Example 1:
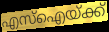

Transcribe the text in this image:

എസ്ഐയ്ക്ക്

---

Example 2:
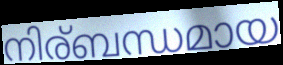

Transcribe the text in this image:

നിര്ബന്ധമായ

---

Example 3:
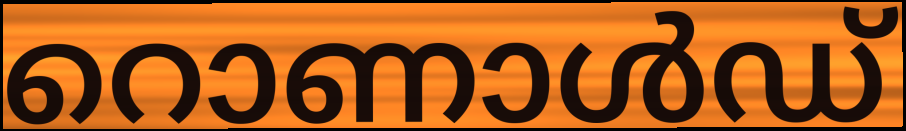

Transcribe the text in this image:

റൊണാൾഡ്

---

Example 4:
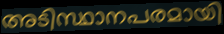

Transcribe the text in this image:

അടിസ്ഥാനപരമായി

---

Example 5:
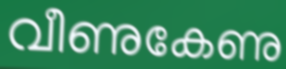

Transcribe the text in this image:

വീണുകേണു